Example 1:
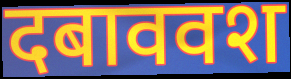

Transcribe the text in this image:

दबाववश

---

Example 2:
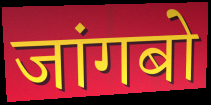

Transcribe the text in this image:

जांगबो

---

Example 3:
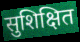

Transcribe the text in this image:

सुशिक्षित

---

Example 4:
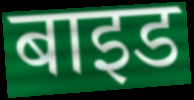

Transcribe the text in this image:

बाइड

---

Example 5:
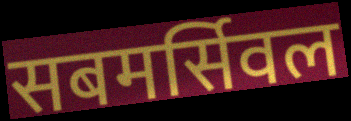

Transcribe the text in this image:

सबमर्सिवल